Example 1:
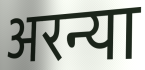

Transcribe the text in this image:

अरन्या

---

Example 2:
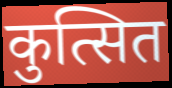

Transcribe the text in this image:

कुत्सित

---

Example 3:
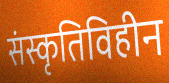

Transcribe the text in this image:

संस्कृतिविहीन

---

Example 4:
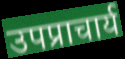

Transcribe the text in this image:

उपप्राचार्य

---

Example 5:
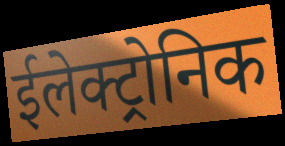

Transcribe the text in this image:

ईलेक्ट्रोनिक